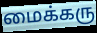
மைக்கரு